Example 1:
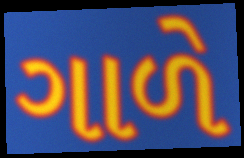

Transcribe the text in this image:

ગાળે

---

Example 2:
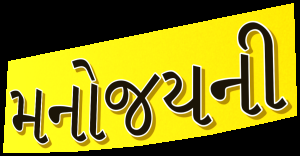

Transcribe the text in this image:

મનોજયની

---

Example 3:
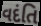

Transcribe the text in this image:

વદંતિ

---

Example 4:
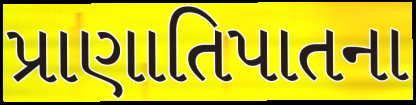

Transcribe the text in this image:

પ્રાણાતિપાતના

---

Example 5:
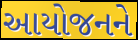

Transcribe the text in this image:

આયોજનને